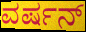
ವರ್ಷನ್